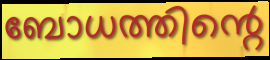
ബോധത്തിന്റെ